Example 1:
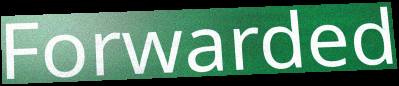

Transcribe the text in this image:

Forwarded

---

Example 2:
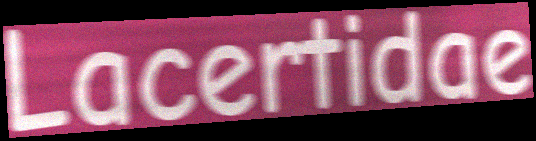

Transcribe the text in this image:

Lacertidae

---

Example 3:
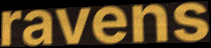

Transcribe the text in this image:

ravens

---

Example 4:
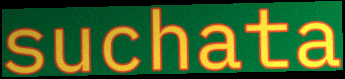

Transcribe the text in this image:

suchata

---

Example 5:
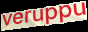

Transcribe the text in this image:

veruppu